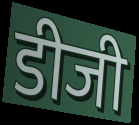
डीजी